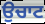
ਉਚਾਟ